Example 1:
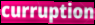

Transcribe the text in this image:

curruption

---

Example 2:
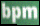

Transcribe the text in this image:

bpm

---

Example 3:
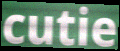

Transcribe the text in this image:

cutie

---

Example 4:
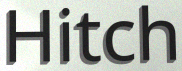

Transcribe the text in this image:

Hitch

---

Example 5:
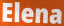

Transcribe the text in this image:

Elena